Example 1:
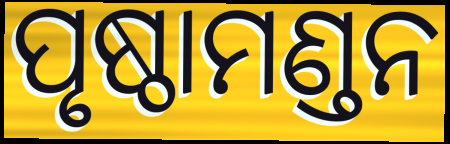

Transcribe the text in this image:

ପୃଷ୍ଠାମଣ୍ଡନ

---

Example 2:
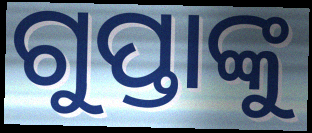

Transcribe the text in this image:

ଗୁପ୍ତାଙ୍କୁ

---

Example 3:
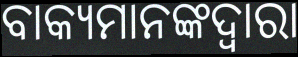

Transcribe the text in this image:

ବାକ୍ୟମାନଙ୍କଦ୍ୱାରା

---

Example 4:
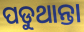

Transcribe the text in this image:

ପଡୁଥାନ୍ତା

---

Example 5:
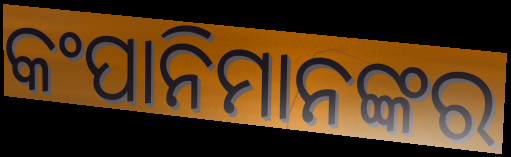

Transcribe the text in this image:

କଂପାନିମାନଙ୍କର